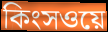
কিংসওয়ে